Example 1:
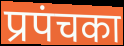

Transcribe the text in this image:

प्रपंचका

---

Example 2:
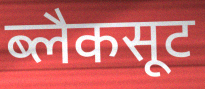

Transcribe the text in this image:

ब्लैकसूट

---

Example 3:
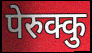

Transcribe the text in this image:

पेरुक्कु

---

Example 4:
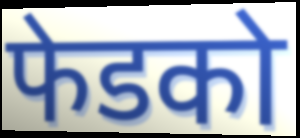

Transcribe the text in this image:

फेडको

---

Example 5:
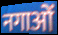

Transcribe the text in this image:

नगाओं